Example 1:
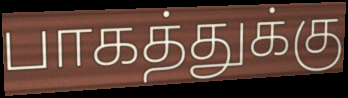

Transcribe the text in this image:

பாகத்துக்கு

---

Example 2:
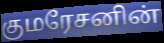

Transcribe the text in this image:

குமரேசனின்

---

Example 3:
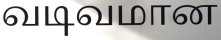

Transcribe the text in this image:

வடிவமான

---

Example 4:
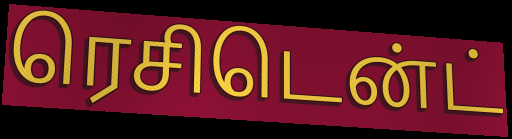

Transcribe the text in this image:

ரெசிடென்ட்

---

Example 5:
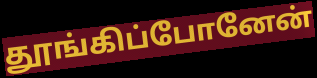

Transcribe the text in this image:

தூங்கிப்போனேன்